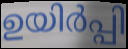
ഉയിർപ്പി